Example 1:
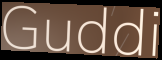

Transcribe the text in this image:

Guddi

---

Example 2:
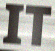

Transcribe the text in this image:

IT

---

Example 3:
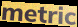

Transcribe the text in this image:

metric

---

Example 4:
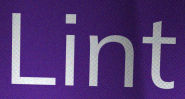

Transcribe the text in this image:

Lint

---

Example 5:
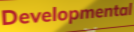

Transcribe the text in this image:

Developmental